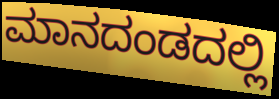
ಮಾನದಂಡದಲ್ಲಿ